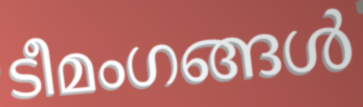
ടീമംഗങ്ങൾ